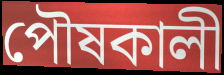
পৌষকালী